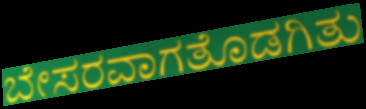
ಬೇಸರವಾಗತೊಡಗಿತು